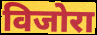
विजोरा